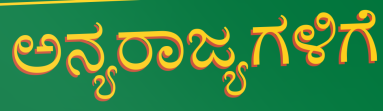
ಅನ್ಯರಾಜ್ಯಗಳಿಗೆ